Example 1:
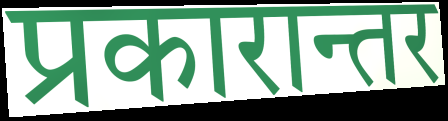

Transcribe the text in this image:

प्रकारान्तर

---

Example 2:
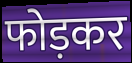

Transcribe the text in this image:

फोड़कर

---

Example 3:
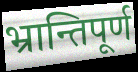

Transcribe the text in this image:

भ्रान्तिपूर्ण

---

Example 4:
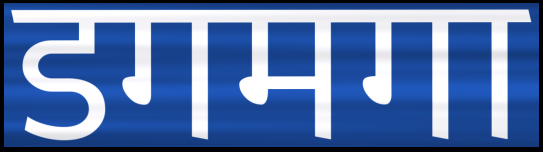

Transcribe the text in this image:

डगमगा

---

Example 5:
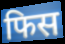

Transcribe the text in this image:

फिस